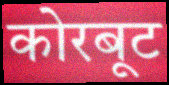
कोरबूट